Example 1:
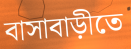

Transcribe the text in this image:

বাসাবাড়ীতে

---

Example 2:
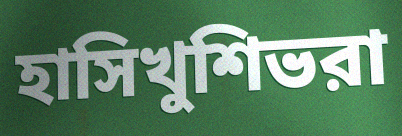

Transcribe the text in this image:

হাসিখুশিভরা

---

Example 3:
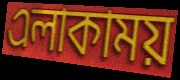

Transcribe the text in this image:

এলাকাময়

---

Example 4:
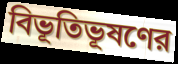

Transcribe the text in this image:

বিভূতিভূষণের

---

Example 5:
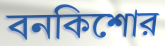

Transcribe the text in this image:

বনকিশোর